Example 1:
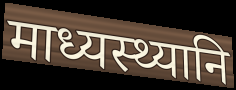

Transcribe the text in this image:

माध्यस्थ्यानि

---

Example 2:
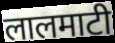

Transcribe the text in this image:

लालमाटी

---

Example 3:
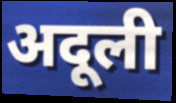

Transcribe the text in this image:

अदूली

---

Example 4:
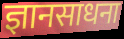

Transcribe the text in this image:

ज्ञानसाधना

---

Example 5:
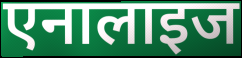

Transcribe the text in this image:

एनालाइज